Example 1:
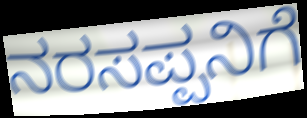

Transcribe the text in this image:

ನರಸಪ್ಪನಿಗೆ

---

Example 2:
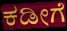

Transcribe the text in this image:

ಕಡೀಗೆ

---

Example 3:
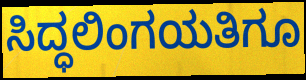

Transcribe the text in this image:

ಸಿದ್ಧಲಿಂಗಯತಿಗೂ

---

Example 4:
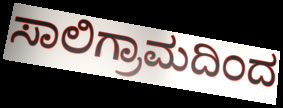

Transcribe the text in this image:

ಸಾಲಿಗ್ರಾಮದಿಂದ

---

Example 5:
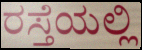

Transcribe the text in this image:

ರಸ್ತೆಯಲ್ಲಿ